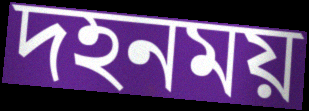
দহনময়